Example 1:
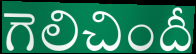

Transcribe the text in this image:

గెలిచిందీ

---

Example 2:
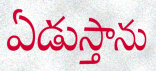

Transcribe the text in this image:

ఏడుస్తాను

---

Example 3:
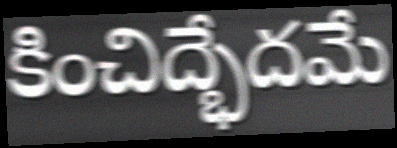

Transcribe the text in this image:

కించిద్భేదమే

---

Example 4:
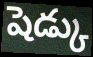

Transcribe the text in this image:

షెడ్కు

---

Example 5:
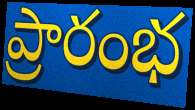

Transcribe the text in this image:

ప్రారంభ